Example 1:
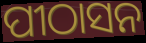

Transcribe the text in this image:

ପୀଠାସନ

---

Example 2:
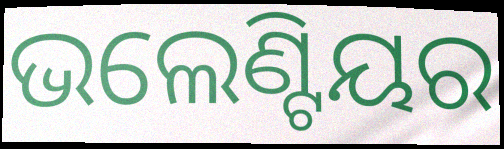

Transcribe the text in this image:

ଭଲେଣ୍ଟିୟର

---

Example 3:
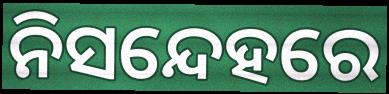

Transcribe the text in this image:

ନିସନ୍ଦେହରେ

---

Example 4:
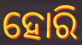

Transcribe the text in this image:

ହୋରି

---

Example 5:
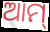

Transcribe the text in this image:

ଆମ୍